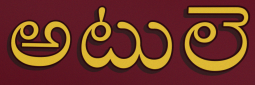
అటులె